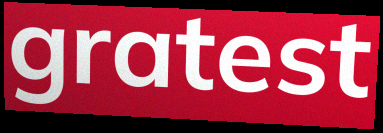
gratest